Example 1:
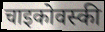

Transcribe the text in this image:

चाइकोवस्की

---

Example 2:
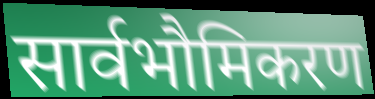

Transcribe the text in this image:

सार्वभौमिकरण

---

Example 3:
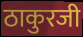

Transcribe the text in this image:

ठाकुरजी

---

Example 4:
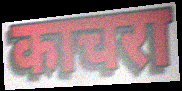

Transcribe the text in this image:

काचरा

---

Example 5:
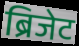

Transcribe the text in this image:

ब्रिजेट